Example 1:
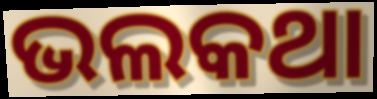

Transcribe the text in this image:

ଭଲକଥା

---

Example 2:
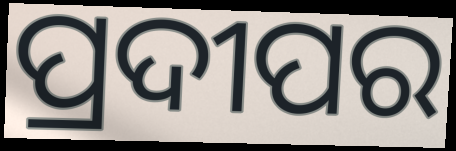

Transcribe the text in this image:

ପ୍ରଦୀପର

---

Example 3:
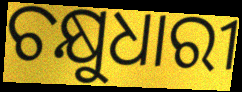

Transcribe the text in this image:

ଚକ୍ଷୁଧାରୀ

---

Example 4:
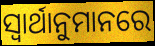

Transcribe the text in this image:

ସ୍ୱାର୍ଥାନୁମାନରେ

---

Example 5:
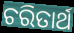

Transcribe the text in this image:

ଚରିତାର୍ଥ